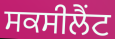
ਸਕਸੀਲੈਂਟ